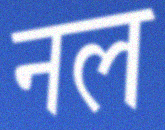
नल